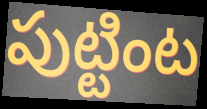
పుట్టింట